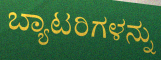
ಬ್ಯಾಟರಿಗಳನ್ನು